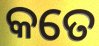
କତେ